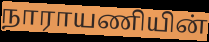
நாராயணியின்